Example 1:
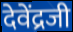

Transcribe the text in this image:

देवेंद्रजी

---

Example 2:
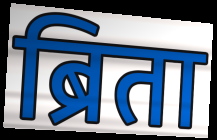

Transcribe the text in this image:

ब्रिता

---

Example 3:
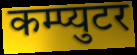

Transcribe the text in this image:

कम्प्युटर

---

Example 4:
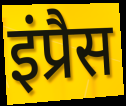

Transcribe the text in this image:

इंप्रैस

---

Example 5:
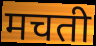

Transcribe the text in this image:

मचती